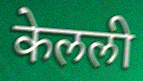
केलली